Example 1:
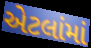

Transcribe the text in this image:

એટલાંમાં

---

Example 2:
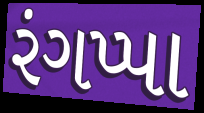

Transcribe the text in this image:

રંગપ્પા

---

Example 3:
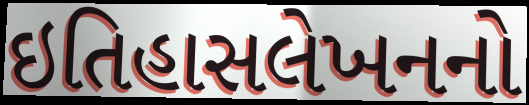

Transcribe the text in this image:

ઇતિહાસલેખનનો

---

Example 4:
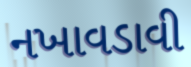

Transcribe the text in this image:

નખાવડાવી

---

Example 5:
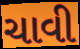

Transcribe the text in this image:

ચાવી